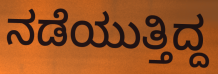
ನಡೆಯುತ್ತಿದ್ದ